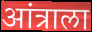
आंत्राला